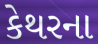
કેથરના